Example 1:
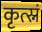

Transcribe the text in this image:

कृत्स्नं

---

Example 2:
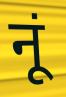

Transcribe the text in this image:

नूं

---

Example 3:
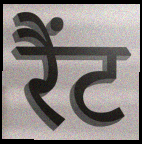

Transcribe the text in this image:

रैंट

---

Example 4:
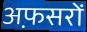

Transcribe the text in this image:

अ़फसरों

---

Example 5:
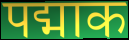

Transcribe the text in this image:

पद्माक